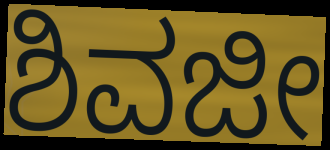
ಶಿವಜೀ